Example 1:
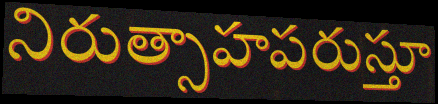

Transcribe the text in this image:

నిరుత్సాహపరుస్తూ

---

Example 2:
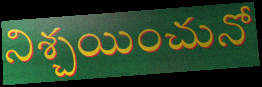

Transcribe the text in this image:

నిశ్చయించునో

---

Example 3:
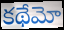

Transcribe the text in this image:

కథేమో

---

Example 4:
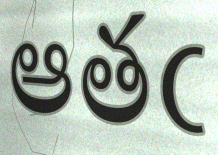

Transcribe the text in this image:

ఆతఁ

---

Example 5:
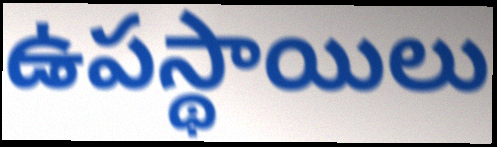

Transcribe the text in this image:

ఉపస్థాయిలు